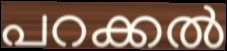
പറക്കൽ